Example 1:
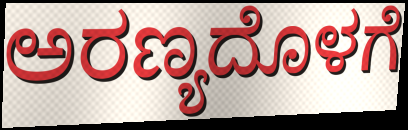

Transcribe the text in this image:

ಅರಣ್ಯದೊಳಗೆ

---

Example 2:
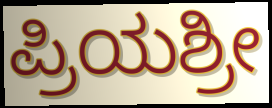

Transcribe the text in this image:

ಪ್ರಿಯಶ್ರೀ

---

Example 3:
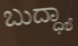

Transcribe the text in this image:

ಬುದ್ಧ್ಯಾ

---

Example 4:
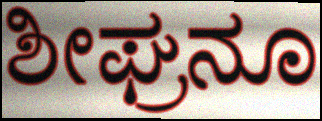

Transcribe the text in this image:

ಶೀಘ್ರನೂ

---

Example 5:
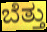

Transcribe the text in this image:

ಬೆತ್ತು